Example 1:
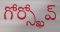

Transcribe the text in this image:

గోర్స్ఖోవ్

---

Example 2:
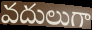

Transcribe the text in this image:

వదులుగా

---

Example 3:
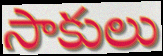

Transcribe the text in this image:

సాకులు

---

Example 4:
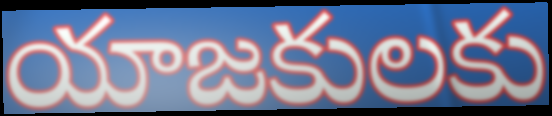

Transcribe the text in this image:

యాజకులకు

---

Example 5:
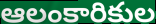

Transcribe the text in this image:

ఆలంకారికుల